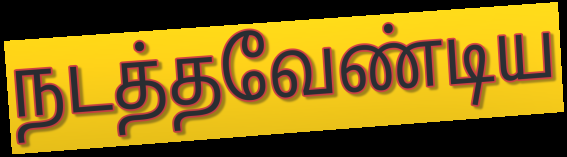
நடத்தவேண்டிய